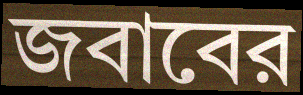
জবাবের